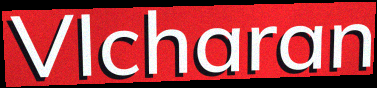
VIcharan